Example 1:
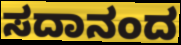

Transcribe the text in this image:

ಸದಾನಂದ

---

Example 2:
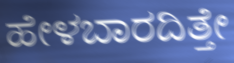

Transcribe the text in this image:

ಹೇಳಬಾರದಿತ್ತೇ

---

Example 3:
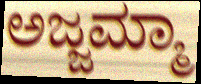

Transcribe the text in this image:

ಅಜ್ಜಮ್ಮಾ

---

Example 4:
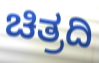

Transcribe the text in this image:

ಚಿತ್ರದಿ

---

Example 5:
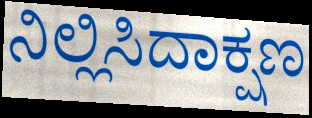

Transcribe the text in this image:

ನಿಲ್ಲಿಸಿದಾಕ್ಷಣ